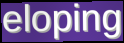
eloping